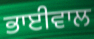
ਭਾਈਵਾਲ